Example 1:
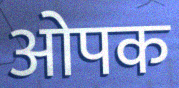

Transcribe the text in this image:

ओपक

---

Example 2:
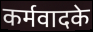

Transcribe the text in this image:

कर्मवादके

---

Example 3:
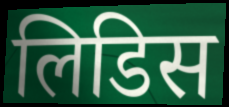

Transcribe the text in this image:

लिडिस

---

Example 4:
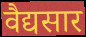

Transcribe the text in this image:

वैद्यसार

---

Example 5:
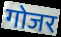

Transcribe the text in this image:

गोजर